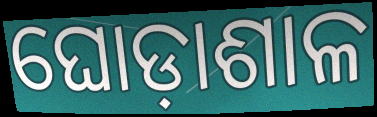
ଘୋଡ଼ାଶାଳ